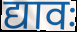
द्यावः